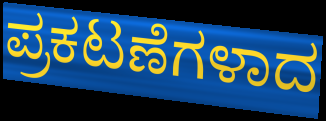
ಪ್ರಕಟಣೆಗಳಾದ